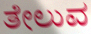
ತೇಲುವ